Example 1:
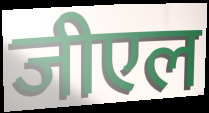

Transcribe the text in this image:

जीएल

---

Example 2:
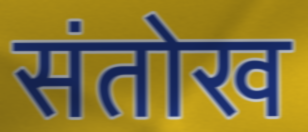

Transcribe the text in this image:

संतोख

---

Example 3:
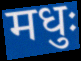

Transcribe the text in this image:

मधुः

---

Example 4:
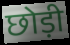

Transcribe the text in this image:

छोड़ी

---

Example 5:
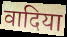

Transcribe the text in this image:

वादिया